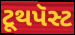
ટૂથપૅસ્ટ